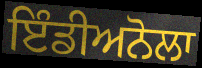
ਇੰਡੀਅਨੋਲਾ